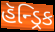
હૅન્ડ્રિક